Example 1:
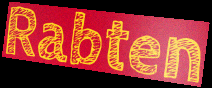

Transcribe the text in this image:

Rabten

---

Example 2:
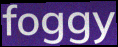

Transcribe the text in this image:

foggy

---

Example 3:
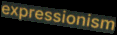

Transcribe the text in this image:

expressionism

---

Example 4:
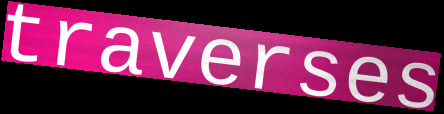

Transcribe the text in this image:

traverses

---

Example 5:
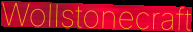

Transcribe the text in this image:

Wollstonecraft